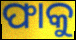
ଫାକୁ